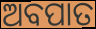
ଅବପାତ